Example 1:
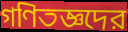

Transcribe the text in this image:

গণিতজ্ঞদের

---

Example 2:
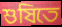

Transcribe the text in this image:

শুষিতে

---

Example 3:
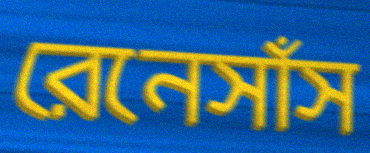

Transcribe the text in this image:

রেনেসাঁস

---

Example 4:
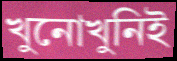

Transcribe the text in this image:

খুনোখুনিই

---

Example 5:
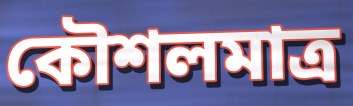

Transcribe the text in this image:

কৌশলমাত্র